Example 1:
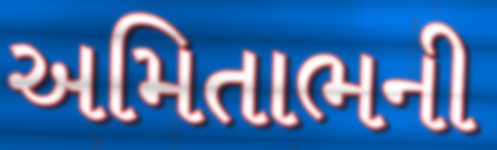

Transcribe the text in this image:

અમિતાભની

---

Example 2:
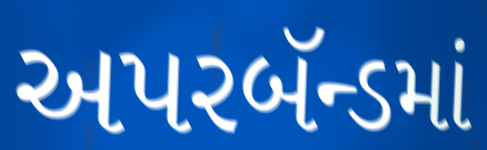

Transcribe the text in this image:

અપરબૅન્ડમાં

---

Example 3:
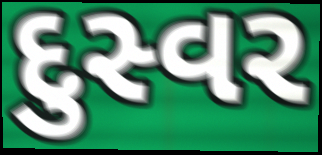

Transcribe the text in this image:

દુસ્વર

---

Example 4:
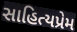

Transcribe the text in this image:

સાહિત્યપ્રેમ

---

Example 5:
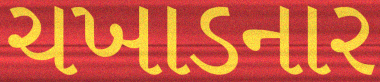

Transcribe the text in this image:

ચખાડનાર